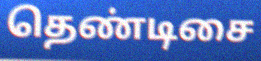
தெண்டிசை